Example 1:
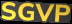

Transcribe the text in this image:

SGVP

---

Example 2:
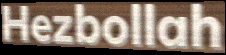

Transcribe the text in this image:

Hezbollah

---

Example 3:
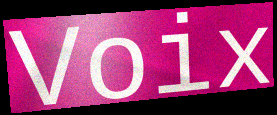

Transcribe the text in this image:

Voix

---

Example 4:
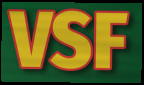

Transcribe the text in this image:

VSF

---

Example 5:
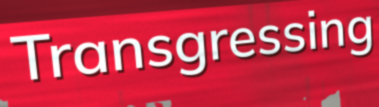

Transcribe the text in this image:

Transgressing